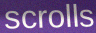
scrolls